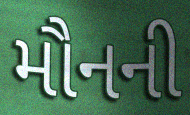
મૌનની